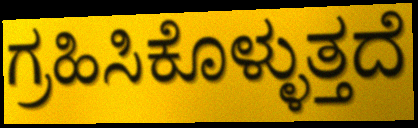
ಗ್ರಹಿಸಿಕೊಳ್ಳುತ್ತದೆ